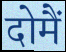
दोमैं